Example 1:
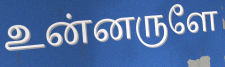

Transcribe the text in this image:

உன்னருளே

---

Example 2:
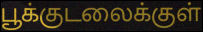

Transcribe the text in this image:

பூக்குடலைக்குள்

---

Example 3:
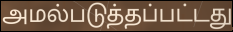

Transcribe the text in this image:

அமல்படுத்தப்பட்டது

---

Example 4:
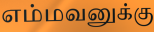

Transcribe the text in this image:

எம்மவனுக்கு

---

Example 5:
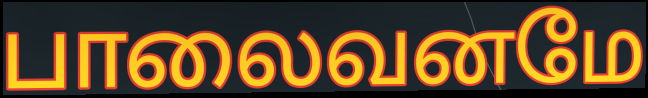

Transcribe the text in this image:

பாலைவனமே